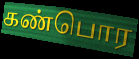
கண்பொர